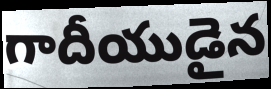
గాదీయుడైన